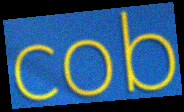
cob